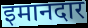
इमानदार